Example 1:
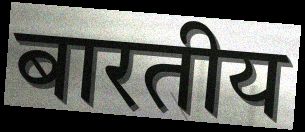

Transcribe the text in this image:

बारतीय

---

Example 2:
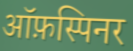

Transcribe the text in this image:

ऑफ़स्पिनर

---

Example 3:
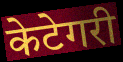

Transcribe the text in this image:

केटेगरी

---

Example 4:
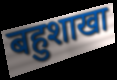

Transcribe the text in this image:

बहुशाखा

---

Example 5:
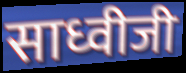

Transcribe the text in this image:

साध्वीजी